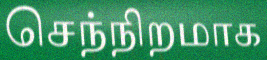
செந்நிறமாக